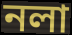
নলা